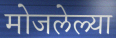
मोजलेल्या